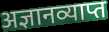
अज्ञानव्याप्त